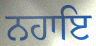
ਨਹਾਇ